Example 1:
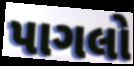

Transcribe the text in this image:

પાગલો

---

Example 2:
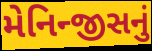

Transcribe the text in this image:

મેનિન્જીસનું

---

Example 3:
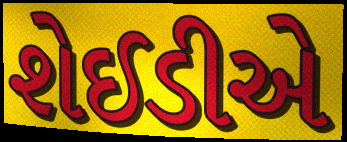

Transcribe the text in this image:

શેઈડીએ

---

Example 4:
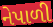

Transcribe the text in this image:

નેપાળી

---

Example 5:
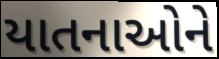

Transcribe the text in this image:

યાતનાઓને